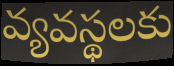
వ్యవస్థలకు